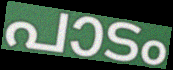
പാടം